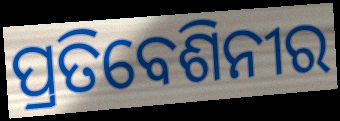
ପ୍ରତିବେଶିନୀର